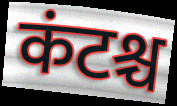
कंटश्च